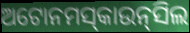
ଅଟୋନମସ୍‌କାଉନ୍‌ସିଲ